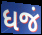
ધજં